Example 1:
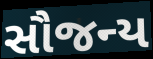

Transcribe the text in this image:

સૌજન્ય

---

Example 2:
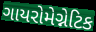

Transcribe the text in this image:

ગાયરોમેગ્નેટિક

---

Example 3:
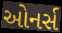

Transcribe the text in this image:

ઓનર્સ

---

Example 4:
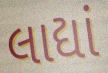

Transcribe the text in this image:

લાદ્યાં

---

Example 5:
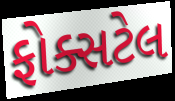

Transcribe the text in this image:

ફોક્સટેલ